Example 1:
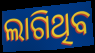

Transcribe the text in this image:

ଲାଗିଥିବ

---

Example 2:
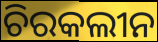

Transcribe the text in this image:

ଚିରକଲୀନ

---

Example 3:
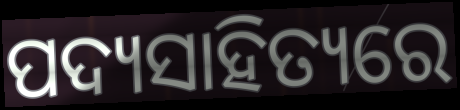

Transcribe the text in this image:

ପଦ୍ୟସାହିତ୍ୟରେ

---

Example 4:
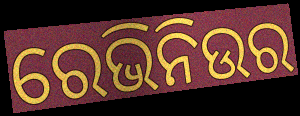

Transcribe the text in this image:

ରେଭିନିଉର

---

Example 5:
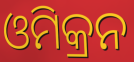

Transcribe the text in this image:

ଓମିକ୍ରନ